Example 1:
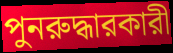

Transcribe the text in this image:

পুনরুদ্ধারকারী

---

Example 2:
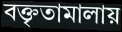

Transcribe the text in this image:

বক্তৃতামালায়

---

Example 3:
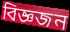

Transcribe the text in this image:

বিজ্ঞজন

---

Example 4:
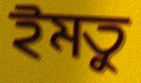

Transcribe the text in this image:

ইমতু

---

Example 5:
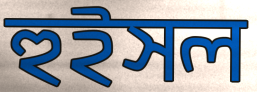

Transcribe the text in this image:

হুইসল